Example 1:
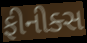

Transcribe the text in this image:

ફીનીક્સ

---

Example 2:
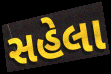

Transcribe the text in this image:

સહેલા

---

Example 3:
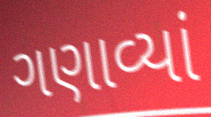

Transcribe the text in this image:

ગણાવ્યાં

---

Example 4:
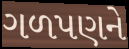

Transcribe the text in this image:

ગળપણને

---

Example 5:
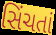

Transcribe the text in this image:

સિંચતાં